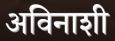
अविनाशी